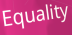
Equality